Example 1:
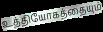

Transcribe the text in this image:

உத்தியோகத்தையும்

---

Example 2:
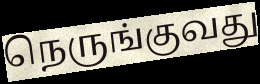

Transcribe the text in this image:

நெருங்குவது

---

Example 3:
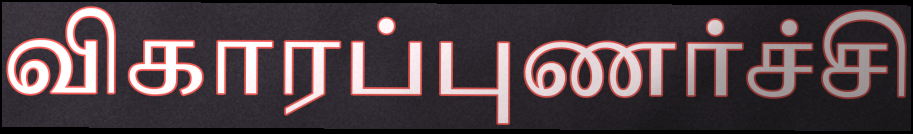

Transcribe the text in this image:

விகாரப்புணர்ச்சி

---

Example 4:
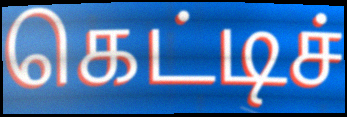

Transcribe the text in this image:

கெட்டிச்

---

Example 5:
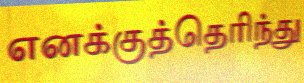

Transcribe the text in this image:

எனக்குத்தெரிந்து